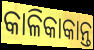
କାଳିକାକାନ୍ତ